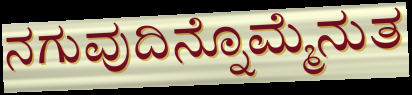
ನಗುವುದಿನ್ನೊಮ್ಮೆನುತ